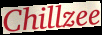
Chillzee